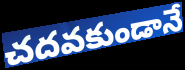
చదవకుండానే